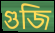
গুজি